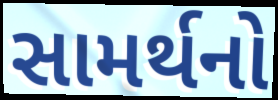
સામર્થનો